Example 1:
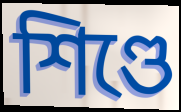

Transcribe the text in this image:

শিণ্ডে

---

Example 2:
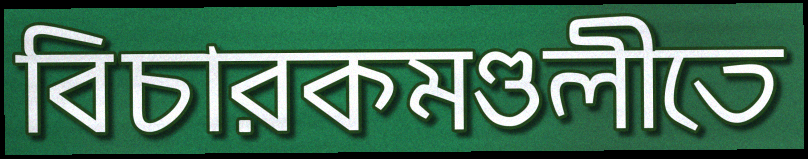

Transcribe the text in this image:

বিচারকমণ্ডলীতে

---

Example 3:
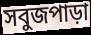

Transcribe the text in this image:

সবুজপাড়া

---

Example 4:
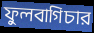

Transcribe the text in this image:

ফুলবাগিচার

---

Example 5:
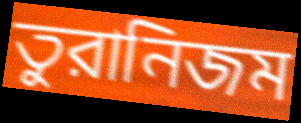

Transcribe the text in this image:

তুরানিজম